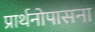
प्रार्थनोपासना